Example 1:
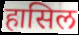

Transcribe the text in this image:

हासिल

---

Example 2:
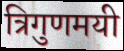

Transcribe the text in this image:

त्रिगुणमयी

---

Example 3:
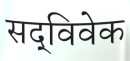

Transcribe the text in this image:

सद्‌विवेक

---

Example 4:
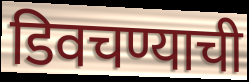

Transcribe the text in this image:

डिवचण्याची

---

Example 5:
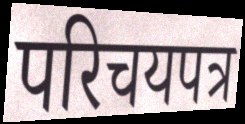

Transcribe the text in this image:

परिचयपत्र